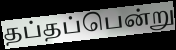
தப்தப்பென்று